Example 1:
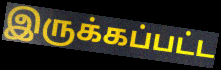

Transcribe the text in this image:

இருக்கப்பட்ட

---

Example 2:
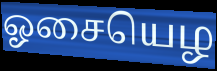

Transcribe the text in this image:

ஓசையெழ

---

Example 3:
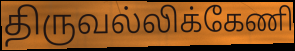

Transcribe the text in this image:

திருவல்லிக்கேணி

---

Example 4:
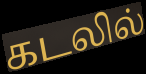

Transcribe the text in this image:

கடலில்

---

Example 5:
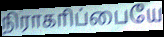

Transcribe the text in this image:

நிராகரிப்பையே